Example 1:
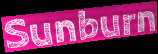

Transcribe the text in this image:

Sunburn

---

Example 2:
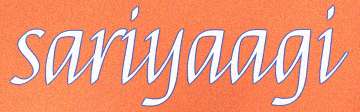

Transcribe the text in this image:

sariyaagi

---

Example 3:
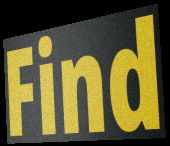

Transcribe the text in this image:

Find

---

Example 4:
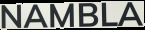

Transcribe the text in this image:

NAMBLA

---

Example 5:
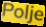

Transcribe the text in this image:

Polje